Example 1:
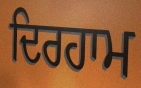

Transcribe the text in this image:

ਦਿਰਹਾਮ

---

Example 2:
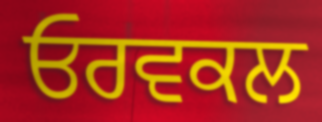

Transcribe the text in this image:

ਓਰਵਕਲ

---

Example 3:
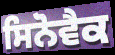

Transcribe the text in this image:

ਸਿਨੋਵੈਕ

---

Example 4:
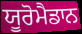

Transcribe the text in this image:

ਯੂਰੋਮੈਡਾਨ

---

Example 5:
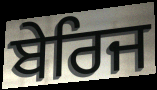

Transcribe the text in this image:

ਬੇਰਿਜ